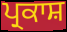
ਪ੍ਰਕਾਸ਼